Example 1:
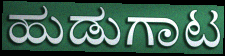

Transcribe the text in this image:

ಹುಡುಗಾಟ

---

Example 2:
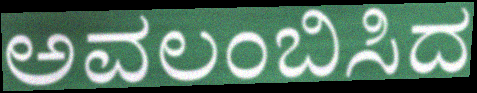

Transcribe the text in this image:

ಅವಲಂಬಿಸಿದ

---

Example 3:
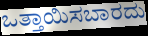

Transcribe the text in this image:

ಒತ್ತಾಯಿಸಬಾರದು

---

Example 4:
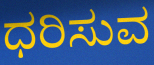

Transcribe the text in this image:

ಧರಿಸುವ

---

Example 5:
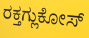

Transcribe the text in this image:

ರಕ್ತಗ್ಲುಕೋಸ್